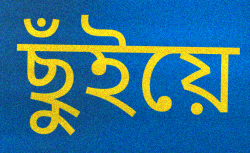
ছুঁইয়ে